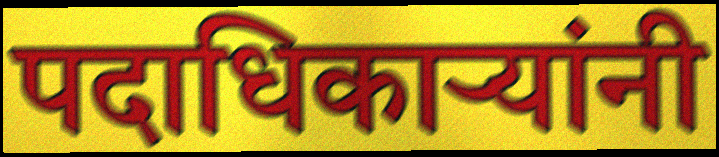
पदाधिकाऱ्यांनी